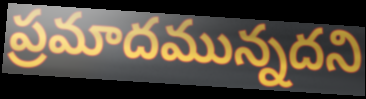
ప్రమాదమున్నదని